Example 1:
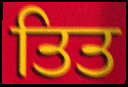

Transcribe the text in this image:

ਤਿਤ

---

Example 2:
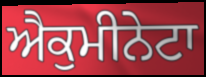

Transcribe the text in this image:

ਐਕੁਮੀਨੇਟਾ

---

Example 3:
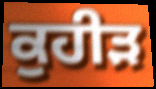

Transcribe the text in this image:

ਕੁਹੀੜ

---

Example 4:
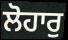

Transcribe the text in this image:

ਲੋਹਾਰੁ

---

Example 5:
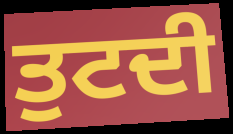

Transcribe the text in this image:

ਤੁਟਦੀ